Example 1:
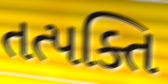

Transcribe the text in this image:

તત્પક્તિ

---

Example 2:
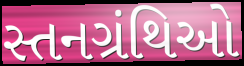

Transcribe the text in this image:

સ્તનગ્રંથિઓ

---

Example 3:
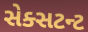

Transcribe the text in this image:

સેક્સટન્ટ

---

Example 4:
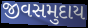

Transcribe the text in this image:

જીવસમુદાય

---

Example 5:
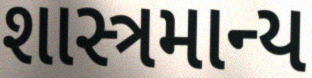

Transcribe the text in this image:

શાસ્ત્રમાન્ય